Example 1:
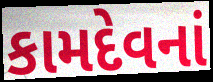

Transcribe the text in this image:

કામદેવનાં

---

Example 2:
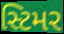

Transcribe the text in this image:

સ્ટિમર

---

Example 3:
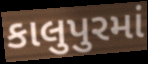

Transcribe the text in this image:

કાલુપુરમાં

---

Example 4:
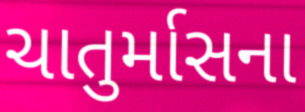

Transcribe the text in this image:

ચાતુર્માસના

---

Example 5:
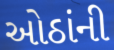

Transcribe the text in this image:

ઓઠાંની